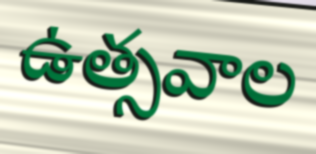
ఉత్సవాల